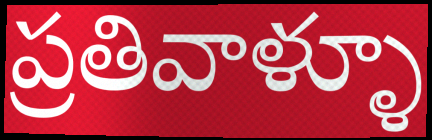
ప్రతివాళ్ళూ